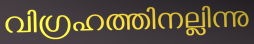
വിഗ്രഹത്തിനല്ലിന്നു